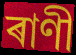
ৰাণী